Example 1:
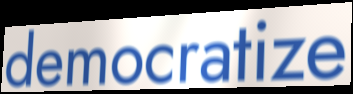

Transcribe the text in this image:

democratize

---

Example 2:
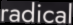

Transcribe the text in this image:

radical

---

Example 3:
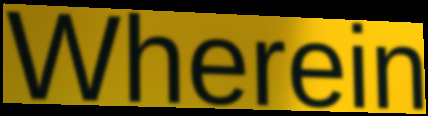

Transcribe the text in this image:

Wherein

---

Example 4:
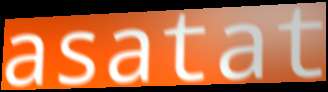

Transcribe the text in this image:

asatat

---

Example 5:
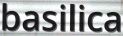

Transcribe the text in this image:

basilica